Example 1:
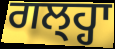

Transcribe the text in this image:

ਗਲ੍ਹ੍ਹਾ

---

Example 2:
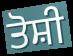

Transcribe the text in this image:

ਤੋਸ਼ੀ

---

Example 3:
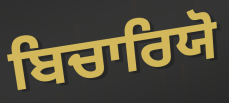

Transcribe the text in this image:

ਬਿਚਾਰਿਯੋ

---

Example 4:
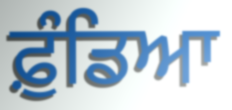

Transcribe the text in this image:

ਫ਼ੁੰਡਿਆ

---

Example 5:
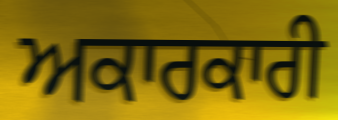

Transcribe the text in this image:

ਅਕਾਰਕਾਰੀ